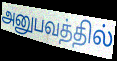
அனுபவத்தில்